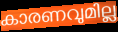
കാരണവുമില്ല